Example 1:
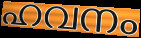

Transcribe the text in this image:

ഹവനം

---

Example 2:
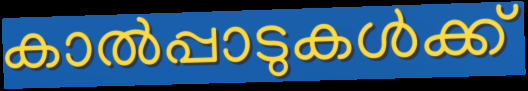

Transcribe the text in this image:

കാൽപ്പാടുകൾക്ക്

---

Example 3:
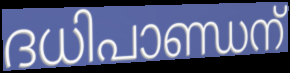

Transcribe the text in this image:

ദധിപാണ്ഡന്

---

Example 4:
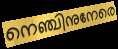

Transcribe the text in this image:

നെഞ്ചിനുനേരെ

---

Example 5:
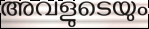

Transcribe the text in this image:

അവളുടെയും